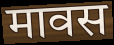
मावस